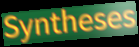
Syntheses